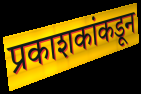
प्रकाशकांकडून